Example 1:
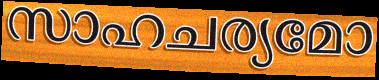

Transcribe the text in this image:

സാഹചര്യമോ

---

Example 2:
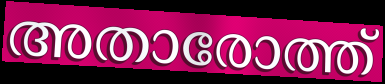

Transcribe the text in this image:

അതാരോത്ത്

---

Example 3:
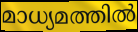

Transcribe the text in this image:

മാധ്യമത്തിൽ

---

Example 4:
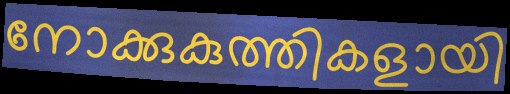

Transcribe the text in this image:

നോക്കുകുത്തികളായി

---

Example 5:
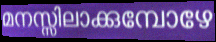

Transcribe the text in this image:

മനസ്സിലാക്കുമ്പോഴേ